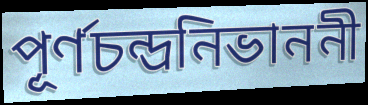
পূর্ণচন্দ্রনিভাননী